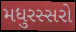
મધુરસ્સરો